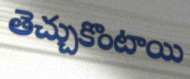
తెచ్చుకొంటాయి